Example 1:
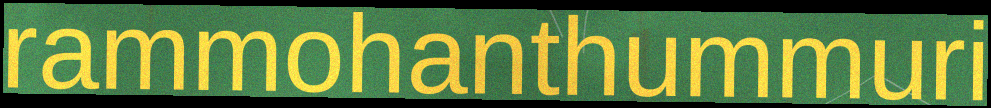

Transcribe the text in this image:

rammohanthummuri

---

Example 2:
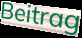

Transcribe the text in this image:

Beitrag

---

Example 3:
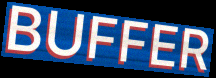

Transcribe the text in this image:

BUFFER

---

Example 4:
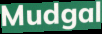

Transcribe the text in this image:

Mudgal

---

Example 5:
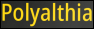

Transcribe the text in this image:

Polyalthia